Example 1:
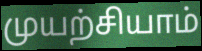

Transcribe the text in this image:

முயற்சியாம்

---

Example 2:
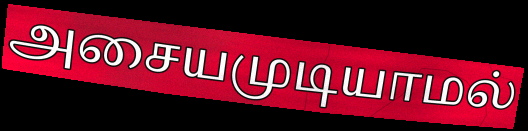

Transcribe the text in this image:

அசையமுடியாமல்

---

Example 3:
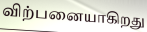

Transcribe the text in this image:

விற்பனையாகிறது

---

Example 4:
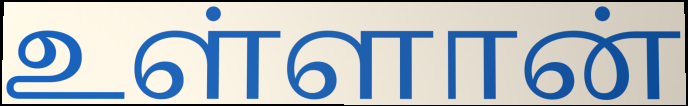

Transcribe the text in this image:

உள்ளான்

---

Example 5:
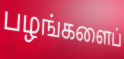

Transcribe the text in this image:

பழங்களைப்